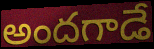
అందగాడే